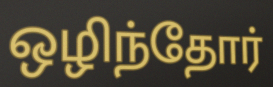
ஒழிந்தோர்